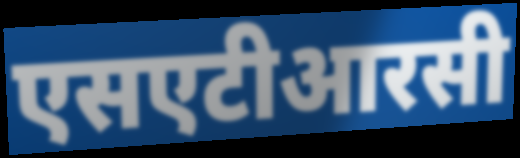
एसएटीआरसी